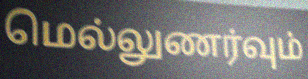
மெல்லுணர்வும்